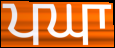
ਪਘਾ